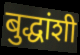
बुद्धांशी